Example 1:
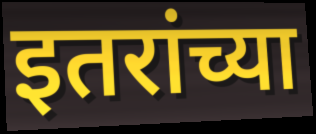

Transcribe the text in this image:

इतरांच्या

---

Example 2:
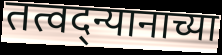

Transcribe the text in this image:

तत्वद्न्यानाच्या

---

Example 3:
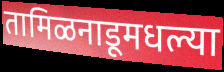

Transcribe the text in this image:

तामिळनाडूमधल्या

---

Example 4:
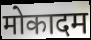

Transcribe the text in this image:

मोकादम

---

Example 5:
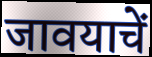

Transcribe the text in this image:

जावयाचें